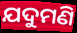
ଯଦୁମଣି